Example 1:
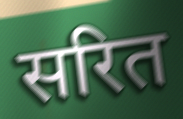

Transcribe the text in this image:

सरित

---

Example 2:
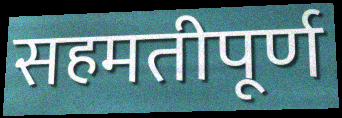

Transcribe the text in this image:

सहमतीपूर्ण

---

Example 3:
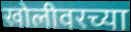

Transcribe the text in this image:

खोलीवरच्या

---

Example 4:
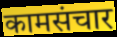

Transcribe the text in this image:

कामसंचार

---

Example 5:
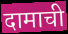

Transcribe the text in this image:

दामाची